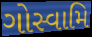
ગોસ્વામિ